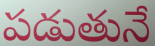
పడుతునే